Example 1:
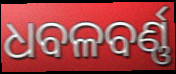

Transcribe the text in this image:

ଧବଳବର୍ଣ୍ଣ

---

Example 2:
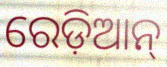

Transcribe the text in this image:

ରେଡ଼ିଆନ୍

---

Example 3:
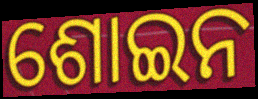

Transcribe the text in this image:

ଶୋଇନ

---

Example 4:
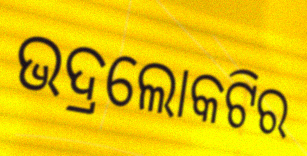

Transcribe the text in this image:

ଭଦ୍ରଲୋକଟିର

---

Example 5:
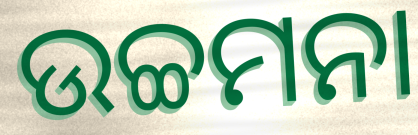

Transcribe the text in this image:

ଉଚ୍ଚମନା